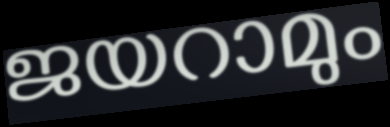
ജയറാമും